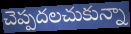
చెప్పదలచుకున్నా